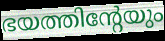
ഭയത്തിന്റേയും